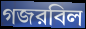
গজরবিল